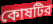
কোষটির